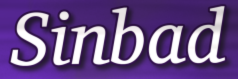
Sinbad